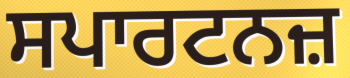
ਸਪਾਰਟਨਜ਼